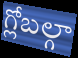
గ్లోబల్గా